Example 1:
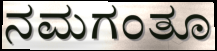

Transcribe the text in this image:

ನಮಗಂತೂ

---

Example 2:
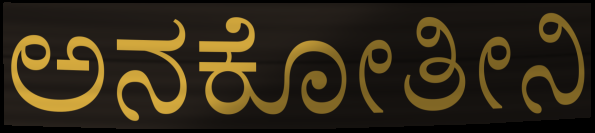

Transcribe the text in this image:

ಅನಕೋತೀನಿ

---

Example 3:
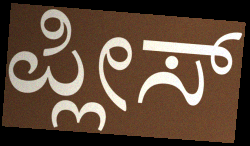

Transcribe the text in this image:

ಪ್ಲೀಸ್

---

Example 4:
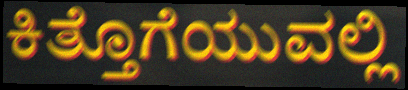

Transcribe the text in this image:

ಕಿತ್ತೊಗೆಯುವಲ್ಲಿ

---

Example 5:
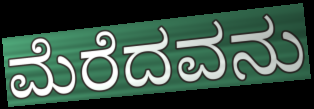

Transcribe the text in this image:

ಮೆರೆದವನು